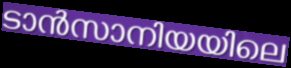
ടാൻസാനിയയിലെ